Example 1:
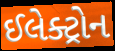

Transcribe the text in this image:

ઈલેક્ટ્રોન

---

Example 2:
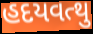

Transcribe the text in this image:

હદયવત્થુ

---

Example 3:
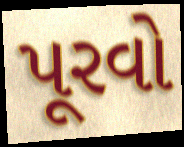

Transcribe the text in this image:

પૂરવો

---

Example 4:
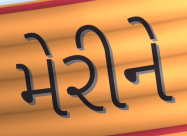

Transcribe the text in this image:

મેરીને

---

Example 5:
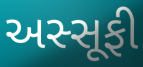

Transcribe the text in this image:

અસ્સૂફી